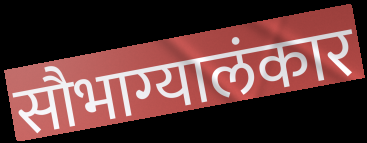
सौभाग्यालंकार